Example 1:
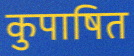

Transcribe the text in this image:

कुपाषित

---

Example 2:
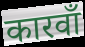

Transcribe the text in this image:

कारवाँ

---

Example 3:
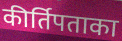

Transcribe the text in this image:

कीर्तिपताका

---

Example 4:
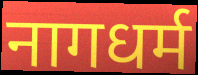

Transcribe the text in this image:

नागधर्म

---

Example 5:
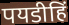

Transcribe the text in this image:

पयडीहिं